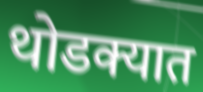
थोडक्‍यात